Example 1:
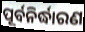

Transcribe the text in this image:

ପୂର୍ବନିର୍ଦ୍ଧାରଣ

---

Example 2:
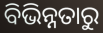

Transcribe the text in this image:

ବିଭିନ୍ନତାରୁ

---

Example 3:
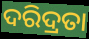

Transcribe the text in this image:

ଦରିଦ୍ରତା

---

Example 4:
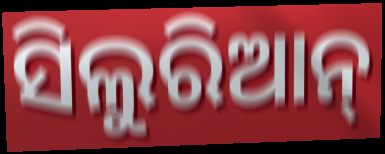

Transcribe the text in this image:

ସିଲୁରିଆନ୍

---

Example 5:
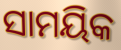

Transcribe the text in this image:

ସାମୟିକ